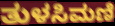
ತುಳಸಿಮಣಿ